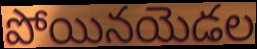
పోయినయెడల